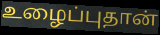
உழைப்புதான்